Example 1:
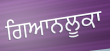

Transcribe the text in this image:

ਗਿਆਨਲੂਕਾ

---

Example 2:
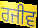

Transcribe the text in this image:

ਰਜੀਵ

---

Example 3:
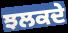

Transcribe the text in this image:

ਝਲਕਦੇ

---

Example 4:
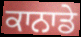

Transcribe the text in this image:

ਕਾਨਾਡੇ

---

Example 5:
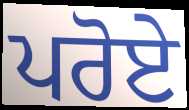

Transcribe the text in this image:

ਪਰੋਏ